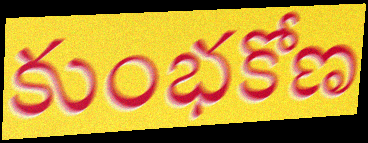
కుంభకోణ